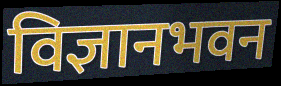
विज्ञानभवन